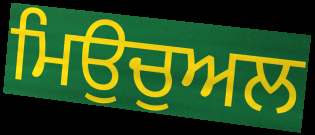
ਮਿਉਚੁਅਲ